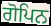
ਗੋਪਿਨ